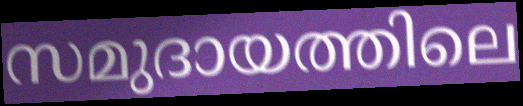
സമുദായത്തിലെ